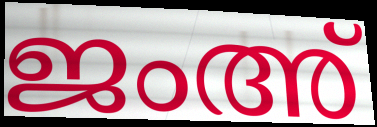
ജംഅ്